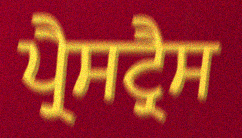
ਪ੍ਰੈਸਟ੍ਰੈਸ